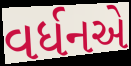
વર્ધનએ